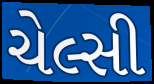
ચેલ્સી